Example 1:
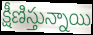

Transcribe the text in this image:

క్షీణిస్తున్నాయి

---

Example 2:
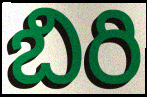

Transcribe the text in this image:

బిరి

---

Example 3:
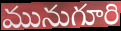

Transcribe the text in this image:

మునుగూరి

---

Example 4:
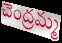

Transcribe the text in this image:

చెంద్రమ్మ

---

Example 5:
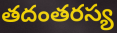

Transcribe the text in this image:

తదంతరస్య